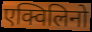
एक्विलिनो